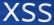
xss